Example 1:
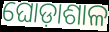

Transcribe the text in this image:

ଘୋଡ଼ାଶାଳ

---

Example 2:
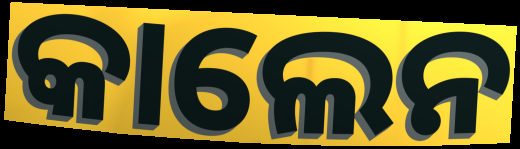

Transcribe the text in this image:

କାଲେନ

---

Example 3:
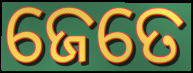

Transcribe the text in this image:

ଜେତେ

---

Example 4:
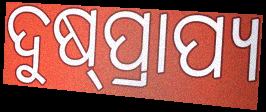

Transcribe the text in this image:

ଦୁଷ୍‌ପ୍ରାପ୍ୟ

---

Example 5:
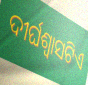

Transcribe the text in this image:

ଦୀର୍ଘଶ୍ୱାସଟିଏ